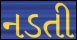
નડતી